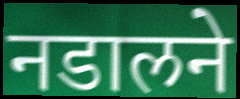
नडालने